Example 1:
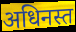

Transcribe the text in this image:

अधिनस्त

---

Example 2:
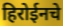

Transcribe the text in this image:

हिरोईनचे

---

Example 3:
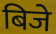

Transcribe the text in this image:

बिजे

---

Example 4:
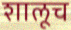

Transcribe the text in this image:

शालूच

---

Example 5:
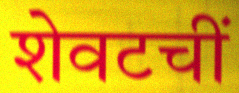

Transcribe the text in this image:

शेवटचीं